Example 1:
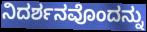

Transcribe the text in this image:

ನಿದರ್ಶನವೊಂದನ್ನು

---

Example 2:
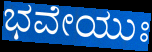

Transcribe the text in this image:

ಭವೇಯುಃ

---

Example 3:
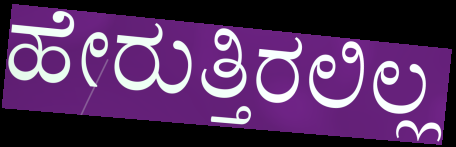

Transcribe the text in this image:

ಹೇರುತ್ತಿರಲಿಲ್ಲ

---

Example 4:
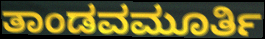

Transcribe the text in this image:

ತಾಂಡವಮೂರ್ತಿ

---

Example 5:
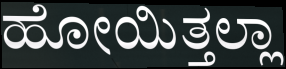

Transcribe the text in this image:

ಹೋಯಿತ್ತಲ್ಲಾ